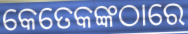
କେତେକଙ୍କଠାରେ